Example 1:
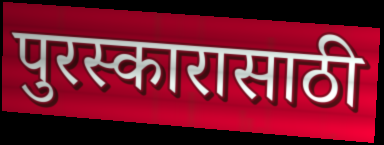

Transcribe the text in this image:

पुरस्कारासाठी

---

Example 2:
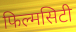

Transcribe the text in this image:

फिल्मसिटी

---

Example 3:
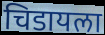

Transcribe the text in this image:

चिडायला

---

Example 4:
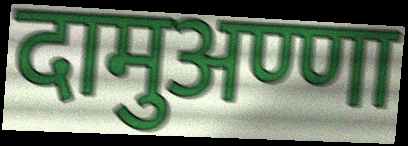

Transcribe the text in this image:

दामुअण्णा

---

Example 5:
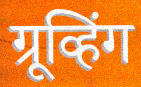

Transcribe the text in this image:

ग्रूव्हिंग